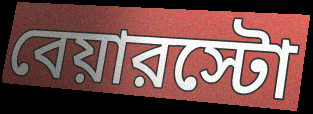
বেয়ারস্টো